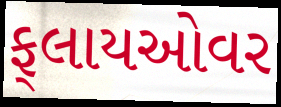
ફ્‌લાયઓવર